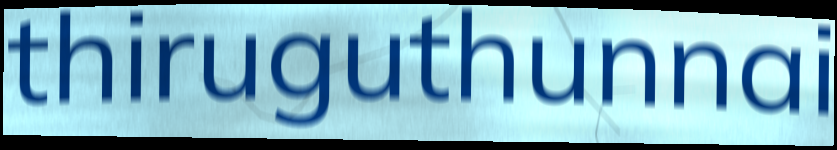
thiruguthunnai